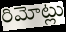
రిమోట్లు